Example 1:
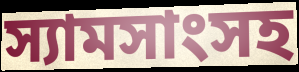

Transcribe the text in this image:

স্যামসাংসহ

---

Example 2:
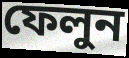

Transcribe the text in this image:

ফেলুন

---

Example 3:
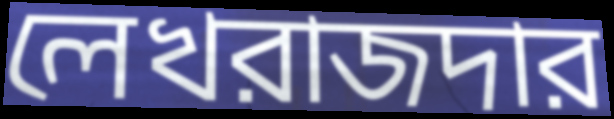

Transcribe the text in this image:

লেখরাজদার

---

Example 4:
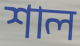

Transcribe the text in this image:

শাল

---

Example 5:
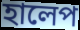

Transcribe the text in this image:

হালেপ